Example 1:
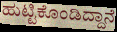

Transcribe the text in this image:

ಹುಟ್ಟಿಕೊಂಡಿದ್ದಾನೆ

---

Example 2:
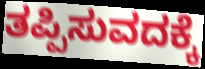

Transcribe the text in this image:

ತಪ್ಪಿಸುವದಕ್ಕೆ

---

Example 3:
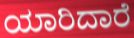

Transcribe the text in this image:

ಯಾರಿದಾರೆ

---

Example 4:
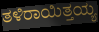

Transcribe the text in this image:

ತಳಿರಾಯಿತ್ತಯ್ಯ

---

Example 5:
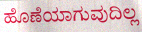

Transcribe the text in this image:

ಹೊಣೆಯಾಗುವುದಿಲ್ಲ